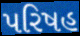
પરિષહ